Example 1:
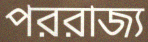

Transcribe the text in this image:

পররাজ্য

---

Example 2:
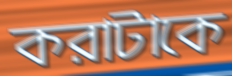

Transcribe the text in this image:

করাটাকে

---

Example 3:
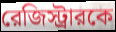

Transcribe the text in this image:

রেজিস্ট্রারকে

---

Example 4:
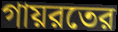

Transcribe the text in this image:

গায়রতের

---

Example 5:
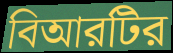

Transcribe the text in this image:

বিআরটির